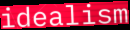
idealism